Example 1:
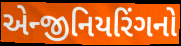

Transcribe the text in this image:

એન્જીનિયરિંગનો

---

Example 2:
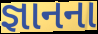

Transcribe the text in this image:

જ્ઞાનના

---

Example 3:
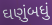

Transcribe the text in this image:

ઘણુંબધું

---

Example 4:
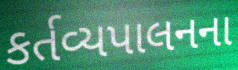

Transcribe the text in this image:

કર્તવ્યપાલનના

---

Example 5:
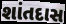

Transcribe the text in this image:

શાંતદાસ